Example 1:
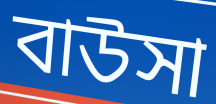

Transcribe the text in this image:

বাউসা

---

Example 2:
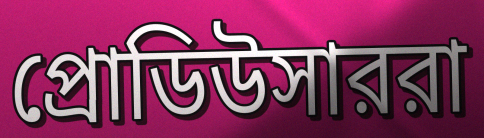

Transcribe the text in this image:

প্রোডিউসাররা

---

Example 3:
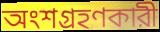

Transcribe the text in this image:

অংশগ্রহণকারী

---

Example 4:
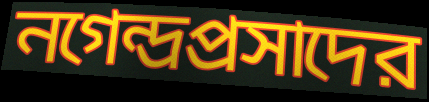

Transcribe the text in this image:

নগেন্দ্রপ্রসাদের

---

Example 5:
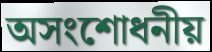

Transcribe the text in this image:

অসংশোধনীয়